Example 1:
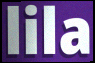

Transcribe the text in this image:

lila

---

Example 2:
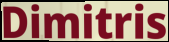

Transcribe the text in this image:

Dimitris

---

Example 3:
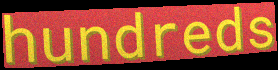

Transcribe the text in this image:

hundreds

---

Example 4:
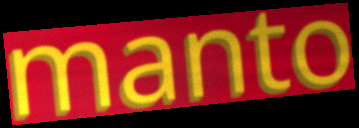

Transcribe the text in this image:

manto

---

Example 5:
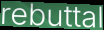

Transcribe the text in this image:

rebuttal